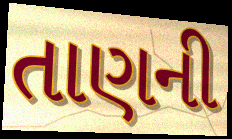
તાણની